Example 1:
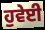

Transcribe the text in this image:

ਹੁਵੇਈ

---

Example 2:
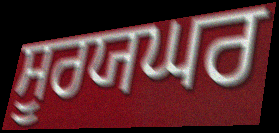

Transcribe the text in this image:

ਸੂਰਯਘਰ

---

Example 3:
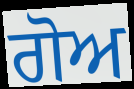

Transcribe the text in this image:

ਗੋਅ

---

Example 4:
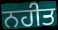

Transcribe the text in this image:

ਨਹੀਤ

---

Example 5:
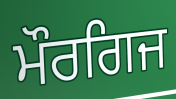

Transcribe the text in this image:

ਮੌਰਗਿਜ